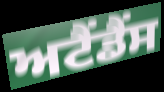
ਅਟੈਂਡੈਂਸ